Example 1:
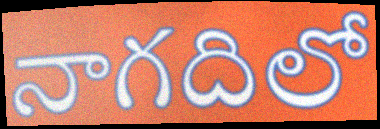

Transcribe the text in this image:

నాగదిలో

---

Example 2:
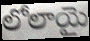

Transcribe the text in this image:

లోలాయై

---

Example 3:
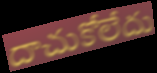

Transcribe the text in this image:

దాచుకోలేదు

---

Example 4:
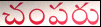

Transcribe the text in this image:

చంపరు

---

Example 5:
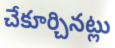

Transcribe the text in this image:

చేకూర్చినట్లు